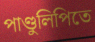
পাণ্ডুলিপিতে